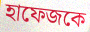
হাফেজকে